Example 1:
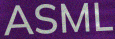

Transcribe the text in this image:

ASML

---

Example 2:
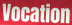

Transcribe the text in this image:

Vocation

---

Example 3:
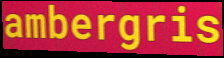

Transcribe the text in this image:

ambergris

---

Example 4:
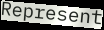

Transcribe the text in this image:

Represent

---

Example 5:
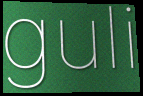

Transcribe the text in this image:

guli